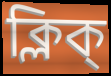
ক্লিক্